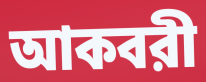
আকবরী